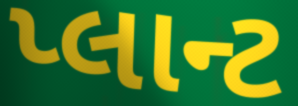
પ્લાન્ટ